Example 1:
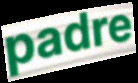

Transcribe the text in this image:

padre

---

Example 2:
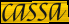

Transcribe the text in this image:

cassa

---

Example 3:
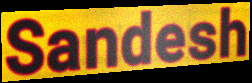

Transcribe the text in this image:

Sandesh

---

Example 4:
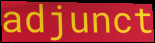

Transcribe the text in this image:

adjunct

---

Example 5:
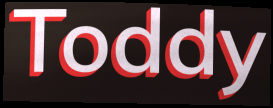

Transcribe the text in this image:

Toddy